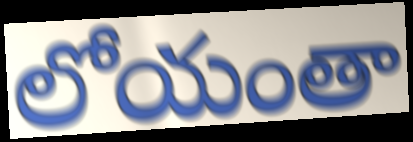
లోయంతా